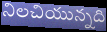
నిలచియున్నది